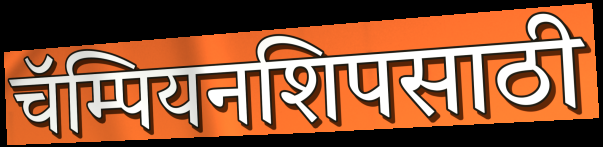
चॅम्पियनशिपसाठी